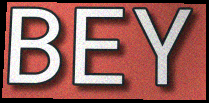
BEY